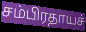
சம்பிரதாயச்